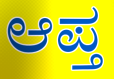
ಆಪ್ತ